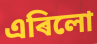
এৰিলো